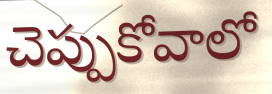
చెప్పుకోవాలో